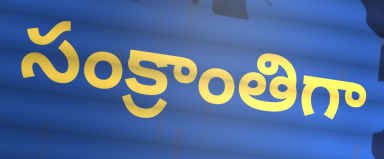
సంక్రాంతిగా